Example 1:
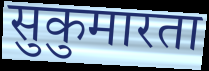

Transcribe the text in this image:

सुकुमारता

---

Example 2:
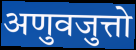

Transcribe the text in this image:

अणुवजुत्तो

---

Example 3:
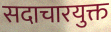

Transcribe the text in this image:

सदाचारयुक्त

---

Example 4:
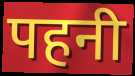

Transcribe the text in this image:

पहनी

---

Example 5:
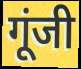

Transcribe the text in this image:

गूंजी